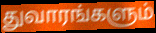
துவாரங்களும்